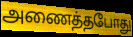
அணைத்தபோது